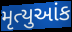
મૃત્યુઆંક